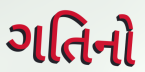
ગતિનો